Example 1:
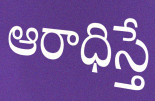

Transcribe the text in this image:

ఆరాధిస్తే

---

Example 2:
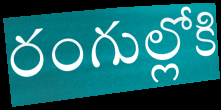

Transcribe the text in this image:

రంగుల్లోకి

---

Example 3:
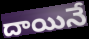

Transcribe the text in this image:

దాయినే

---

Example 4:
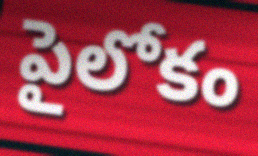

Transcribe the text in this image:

పైలోకం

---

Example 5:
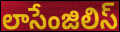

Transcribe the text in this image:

లాసేంజిలిస్